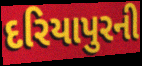
દરિયાપુરની